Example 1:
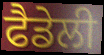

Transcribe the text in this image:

ਫੈਡੇਲੀ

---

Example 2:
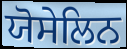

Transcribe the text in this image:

ਯੋਸੇਲਿਨ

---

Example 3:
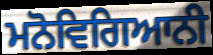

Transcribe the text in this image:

ਮਨੋਵਿਗਿਆਨੀ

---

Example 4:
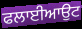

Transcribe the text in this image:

ਫਲਾਈਆਉਟ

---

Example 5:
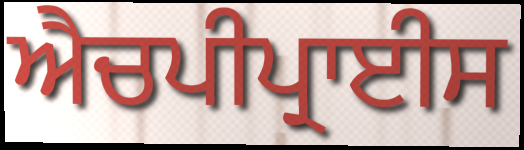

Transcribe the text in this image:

ਐਚਪੀਪ੍ਰਾਈਸ